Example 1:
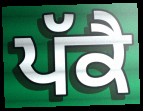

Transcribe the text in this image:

ਪੱਕੈ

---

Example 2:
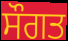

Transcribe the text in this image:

ਸੌਗਤ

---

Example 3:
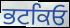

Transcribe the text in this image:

ਭਟਕਿਓ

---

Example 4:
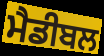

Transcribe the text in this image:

ਮੈਡੀਬਲ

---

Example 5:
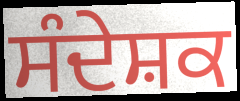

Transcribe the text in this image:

ਸੰਦੇਸ਼ਕ